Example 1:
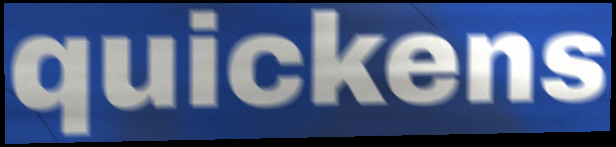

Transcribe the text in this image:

quickens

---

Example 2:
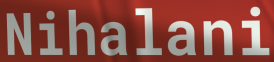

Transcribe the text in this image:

Nihalani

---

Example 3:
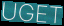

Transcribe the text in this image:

UGET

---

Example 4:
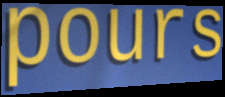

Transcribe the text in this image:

pours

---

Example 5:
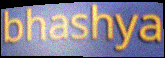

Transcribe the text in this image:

bhashya